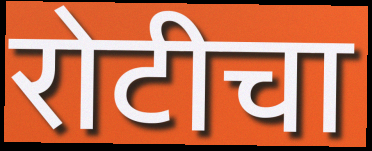
रोटीचा